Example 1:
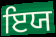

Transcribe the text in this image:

ਇਯ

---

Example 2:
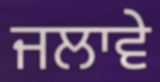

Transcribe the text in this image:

ਜਲਾਵੇ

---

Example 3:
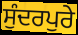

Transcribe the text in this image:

ਸੁੰਦਰਪੁਰੇ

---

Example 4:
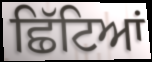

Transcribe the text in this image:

ਛਿੱਟਿਆਂ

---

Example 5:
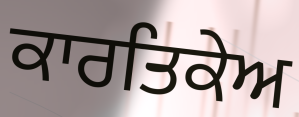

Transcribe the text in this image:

ਕਾਰਤਿਕੇਅ